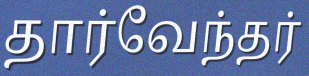
தார்வேந்தர்